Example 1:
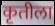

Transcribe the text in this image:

कृतीला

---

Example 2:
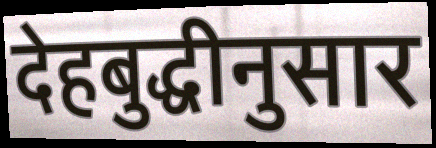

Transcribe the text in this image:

देहबुद्धीनुसार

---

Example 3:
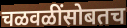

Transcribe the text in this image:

चळवळींसोबतच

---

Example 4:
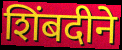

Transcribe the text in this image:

शिंबदीने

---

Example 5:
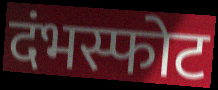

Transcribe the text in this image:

दंभस्फोट